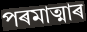
পৰমাত্মাৰ